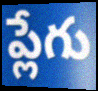
ప్లేగు